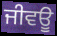
ਜੀਵਊ